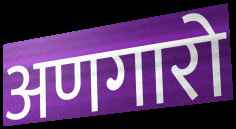
अणगारो